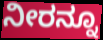
ನೀರನ್ನೂ